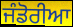
ਜੰਡੋਰੀਆ